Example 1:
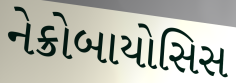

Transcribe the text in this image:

નેક્રોબાયોસિસ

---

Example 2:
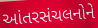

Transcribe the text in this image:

આંતરસંચલનોને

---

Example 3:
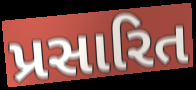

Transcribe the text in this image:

પ્રસારિત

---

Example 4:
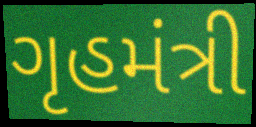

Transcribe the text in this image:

ગૃહમંત્રી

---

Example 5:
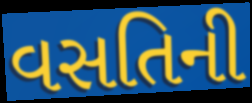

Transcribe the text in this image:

વસતિની